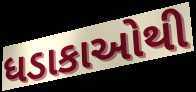
ધડાકાઓથી